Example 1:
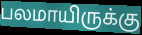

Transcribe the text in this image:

பலமாயிருக்கு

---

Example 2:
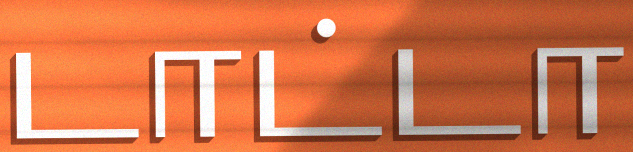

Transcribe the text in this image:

டாட்டா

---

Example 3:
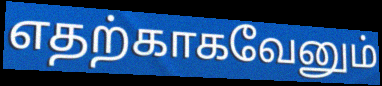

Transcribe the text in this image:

எதற்காகவேனும்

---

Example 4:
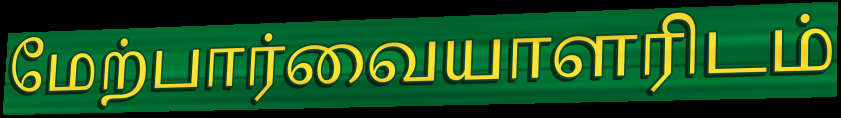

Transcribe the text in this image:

மேற்பார்வையாளரிடம்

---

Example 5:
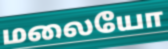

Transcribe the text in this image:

மலையோ